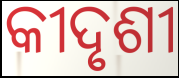
କୀଦୃଶୀ